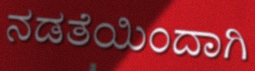
ನಡತೆಯಿಂದಾಗಿ